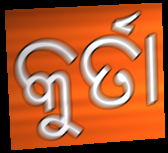
କୁର୍ତା